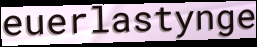
euerlastynge